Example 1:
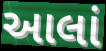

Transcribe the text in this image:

આલાં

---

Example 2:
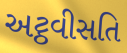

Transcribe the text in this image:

અટ્ઠવીસતિ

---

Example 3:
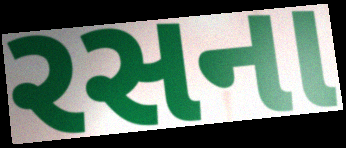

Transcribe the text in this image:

રસના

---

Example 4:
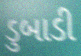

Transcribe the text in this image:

ડુબાડી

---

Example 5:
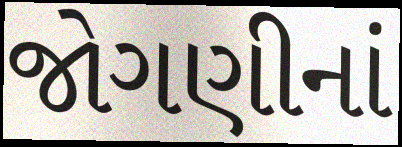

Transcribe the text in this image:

જોગણીનાં